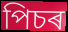
পিচৰ